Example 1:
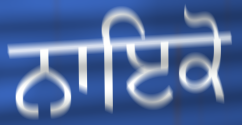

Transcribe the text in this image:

ਨਾਇਕੋ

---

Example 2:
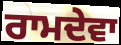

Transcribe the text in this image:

ਰਾਮਦੇਵਾ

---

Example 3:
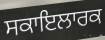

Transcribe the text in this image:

ਸਕਾਇਲਾਰਕ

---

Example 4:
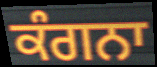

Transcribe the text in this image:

ਕੰਗਨਾ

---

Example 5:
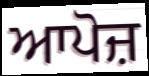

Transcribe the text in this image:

ਆਪੋਜ਼